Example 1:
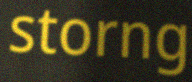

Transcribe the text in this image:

storng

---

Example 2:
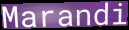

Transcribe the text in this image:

Marandi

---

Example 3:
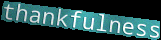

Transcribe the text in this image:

thankfulness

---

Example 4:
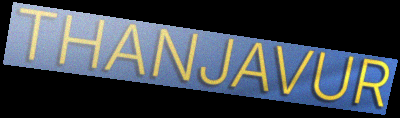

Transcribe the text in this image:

THANJAVUR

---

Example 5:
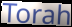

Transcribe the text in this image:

Torah